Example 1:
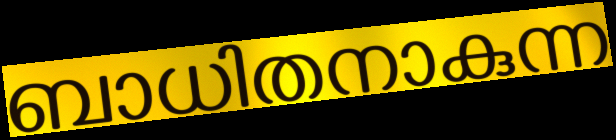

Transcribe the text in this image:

ബാധിതനാകുന്ന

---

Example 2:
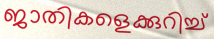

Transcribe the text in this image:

ജാതികളെക്കുറിച്ച്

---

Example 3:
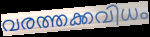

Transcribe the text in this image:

വരത്തക്കവിധം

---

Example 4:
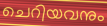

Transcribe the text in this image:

ചെറിയവനും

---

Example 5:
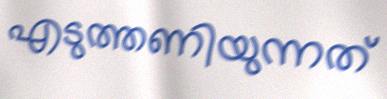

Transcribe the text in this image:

എടുത്തണിയുന്നത്